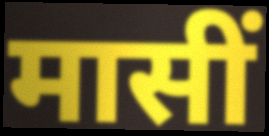
मासीं